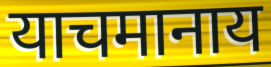
याचमानाय